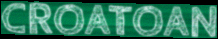
CROATOAN